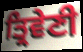
ਤ੍ਰਿਵੇਣੀ